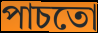
পাচতো